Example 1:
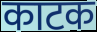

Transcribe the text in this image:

काटक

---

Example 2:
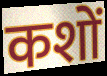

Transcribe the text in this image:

कशों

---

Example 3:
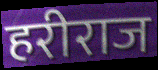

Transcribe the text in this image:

हरीराज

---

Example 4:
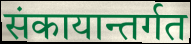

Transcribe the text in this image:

संकायान्तर्गत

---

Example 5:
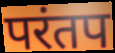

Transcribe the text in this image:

परंतप